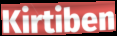
Kirtiben